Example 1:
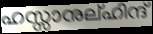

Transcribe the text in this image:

ഹസ്സാനുല്ഹിന്ദ്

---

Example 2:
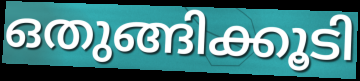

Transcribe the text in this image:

ഒതുങ്ങിക്കൂടി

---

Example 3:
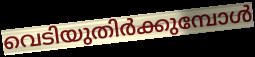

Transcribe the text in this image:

വെടിയുതിർക്കുമ്പോൾ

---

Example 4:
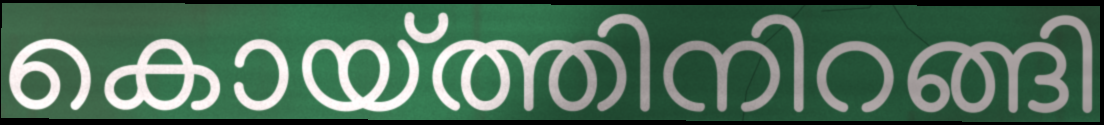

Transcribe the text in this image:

കൊയ്ത്തിനിറങ്ങി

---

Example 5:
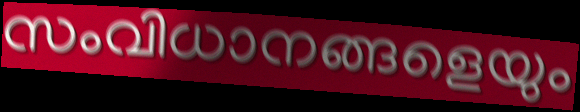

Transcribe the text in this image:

സംവിധാനങ്ങളെയും